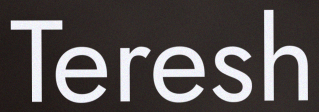
Teresh